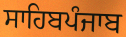
ਸਾਹਿਬਪੰਜਾਬ